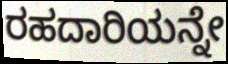
ರಹದಾರಿಯನ್ನೇ